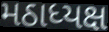
મઠાધ્યક્ષ